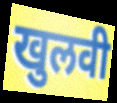
खुलवी